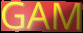
GAM